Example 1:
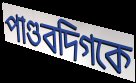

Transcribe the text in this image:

পাণ্ডবদিগকে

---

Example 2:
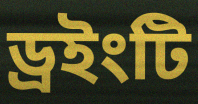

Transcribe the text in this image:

ড্রইংটি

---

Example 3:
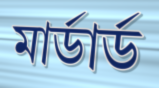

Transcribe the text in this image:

মার্ডার্ড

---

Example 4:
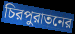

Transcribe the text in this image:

চিরপুরাতনের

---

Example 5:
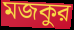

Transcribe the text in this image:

মজকুর